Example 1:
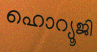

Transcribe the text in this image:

ഹൊറ്യൂജി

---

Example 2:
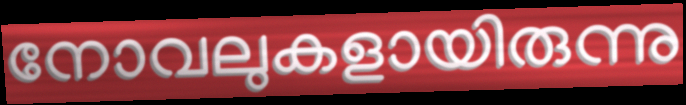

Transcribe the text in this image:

നോവലുകളായിരുന്നു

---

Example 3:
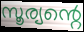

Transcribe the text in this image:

സൂര്യന്റെ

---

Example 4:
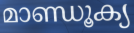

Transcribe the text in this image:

മാണ്ഡൂക്യ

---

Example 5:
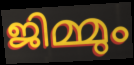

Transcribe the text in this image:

ജിമ്മും